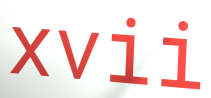
xvii